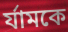
র্যামকে